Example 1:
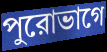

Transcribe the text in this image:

পুরোভাগে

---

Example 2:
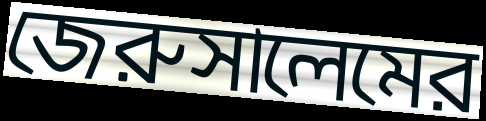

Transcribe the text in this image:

জেরুসালেমের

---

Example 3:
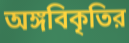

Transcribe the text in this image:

অঙ্গবিকৃতির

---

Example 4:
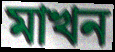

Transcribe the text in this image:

মাখন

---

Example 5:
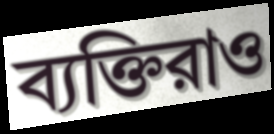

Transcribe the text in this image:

ব্যক্তিরাও